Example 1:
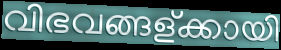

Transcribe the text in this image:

വിഭവങ്ങള്ക്കായി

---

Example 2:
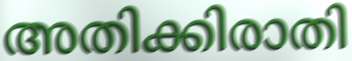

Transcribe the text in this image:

അതിക്കിരാതി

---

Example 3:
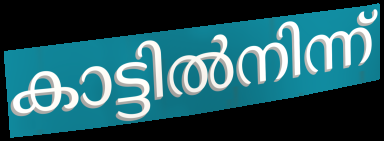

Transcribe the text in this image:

കാട്ടിൽനിന്ന്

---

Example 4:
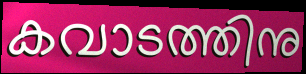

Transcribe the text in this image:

കവാടത്തിനു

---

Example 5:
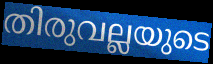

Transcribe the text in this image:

തിരുവല്ലയുടെ